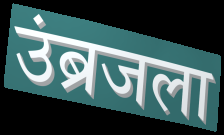
उंब्रजला